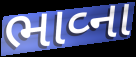
ભાવ્ના